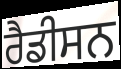
ਰੈਡੀਸਨ